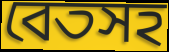
বেতসহ